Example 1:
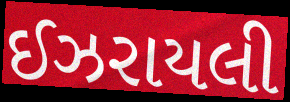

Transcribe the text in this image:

ઈઝરાયલી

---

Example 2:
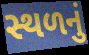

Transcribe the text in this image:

સ્થળનું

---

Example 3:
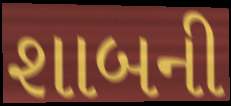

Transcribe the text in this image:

શાબની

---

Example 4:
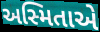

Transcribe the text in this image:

અસ્મિતાએ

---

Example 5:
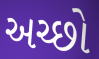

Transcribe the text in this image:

અચ્છો